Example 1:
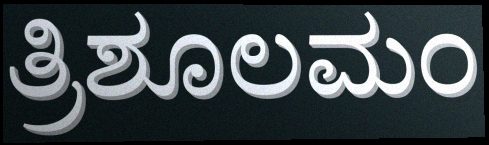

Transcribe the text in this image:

ತ್ರಿಶೂಲಮಂ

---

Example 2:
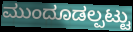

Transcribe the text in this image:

ಮುಂದೂಡಲ್ಪಟ್ಟು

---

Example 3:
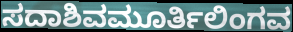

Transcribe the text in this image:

ಸದಾಶಿವಮೂರ್ತಿಲಿಂಗವ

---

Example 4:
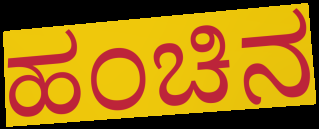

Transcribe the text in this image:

ಹಂಚಿನ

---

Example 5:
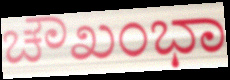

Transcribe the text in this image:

ಚೌಖಂಭಾ